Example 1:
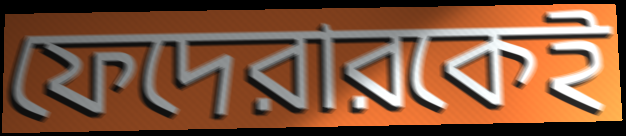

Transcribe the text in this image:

ফেদেরারকেই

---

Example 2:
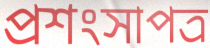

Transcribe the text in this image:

প্রশংসাপত্র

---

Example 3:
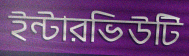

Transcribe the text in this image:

ইন্টারভিউটি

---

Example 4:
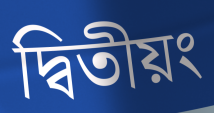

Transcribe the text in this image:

দ্বিতীয়ং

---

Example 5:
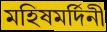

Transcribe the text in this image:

মহিষমর্দিনী